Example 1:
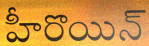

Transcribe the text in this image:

హీరొయిన్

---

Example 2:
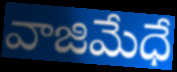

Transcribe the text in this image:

వాజిమేధే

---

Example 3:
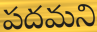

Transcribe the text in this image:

పదమని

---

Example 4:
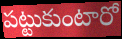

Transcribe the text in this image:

పట్టుకుంటారో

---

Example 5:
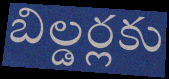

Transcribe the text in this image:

బిల్డర్లకు